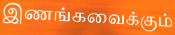
இணங்கவைக்கும்